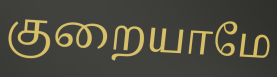
குறையாமே